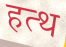
हत्थ